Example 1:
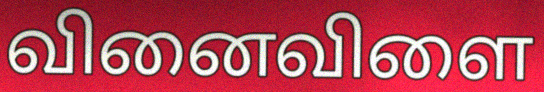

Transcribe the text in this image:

வினைவிளை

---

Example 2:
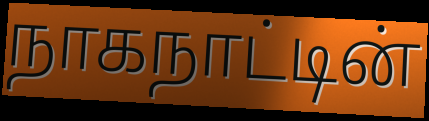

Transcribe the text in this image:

நாகநாட்டின்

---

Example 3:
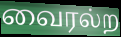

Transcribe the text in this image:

வைரல்ற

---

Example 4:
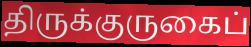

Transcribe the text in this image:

திருக்குருகைப்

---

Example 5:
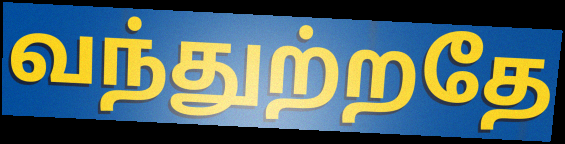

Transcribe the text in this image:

வந்துற்றதே